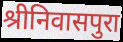
श्रीनिवासपुरा